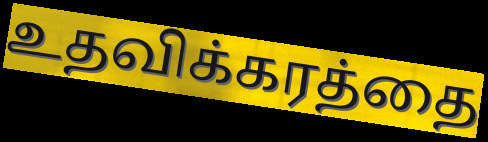
உதவிக்கரத்தை